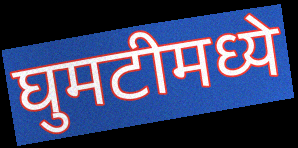
घुमटीमध्ये